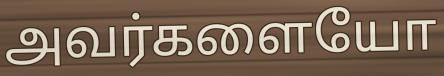
அவர்களையோ